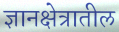
ज्ञानक्षेत्रातील